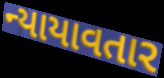
ન્યાયાવતાર